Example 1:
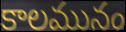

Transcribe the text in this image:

కాలమునం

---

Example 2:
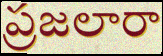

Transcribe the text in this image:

ప్రజలారా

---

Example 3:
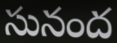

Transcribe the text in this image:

సునంద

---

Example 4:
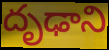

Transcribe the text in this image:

దృఢాని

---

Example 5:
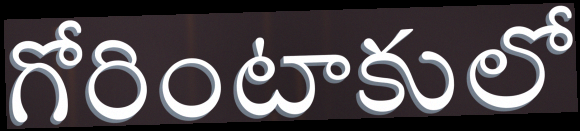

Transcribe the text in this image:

గోరింటాకులో